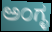
ಅಂಗ್ಳ